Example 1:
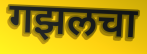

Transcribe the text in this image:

गझलचा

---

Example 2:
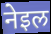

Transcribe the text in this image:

नेइल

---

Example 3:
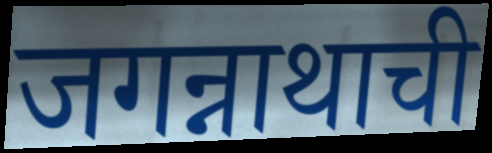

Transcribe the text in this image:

जगन्नाथाची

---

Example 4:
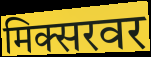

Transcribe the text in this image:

मिक्‍सरवर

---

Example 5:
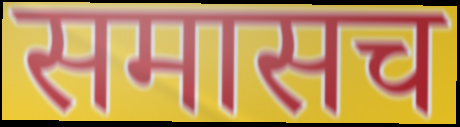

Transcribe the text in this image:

समासच